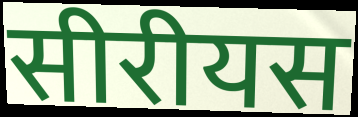
सीरीयस